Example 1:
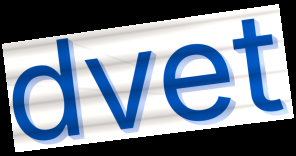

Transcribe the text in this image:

dvet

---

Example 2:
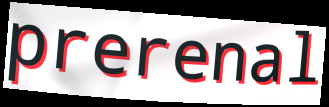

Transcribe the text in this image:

prerenal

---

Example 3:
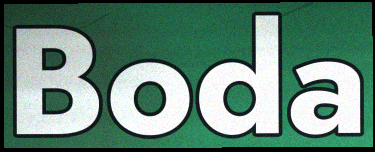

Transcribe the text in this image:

Boda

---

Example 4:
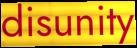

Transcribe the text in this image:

disunity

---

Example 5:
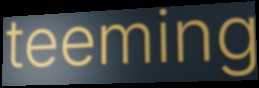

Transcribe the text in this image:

teeming